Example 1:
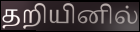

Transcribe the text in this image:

தறியினில்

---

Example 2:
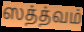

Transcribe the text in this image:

ஸத்த்வம்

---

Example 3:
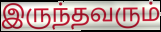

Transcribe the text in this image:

இருந்தவரும்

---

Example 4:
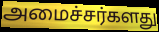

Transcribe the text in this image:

அமைச்சர்களது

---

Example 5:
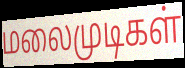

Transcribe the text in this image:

மலைமுடிகள்